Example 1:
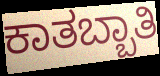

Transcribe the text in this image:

ಕಾತಬ್ಬಾತಿ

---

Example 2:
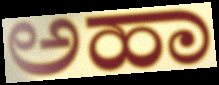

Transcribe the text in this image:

ಅಹಾ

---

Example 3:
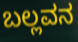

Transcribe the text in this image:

ಬಲ್ಲವನ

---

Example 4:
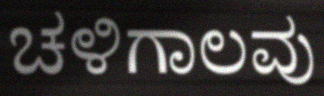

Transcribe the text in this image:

ಚಳಿಗಾಲವು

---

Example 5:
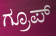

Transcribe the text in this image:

ಗ್ರೂಪ್